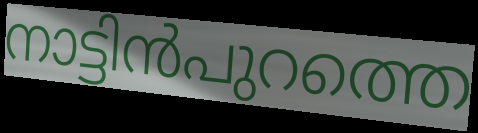
നാട്ടിൻപുറത്തെ